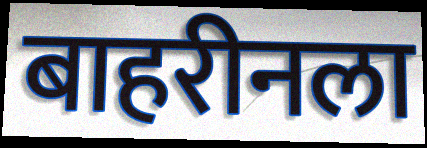
बाहरीनला